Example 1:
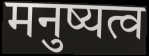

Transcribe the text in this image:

मनुष्यत्‍व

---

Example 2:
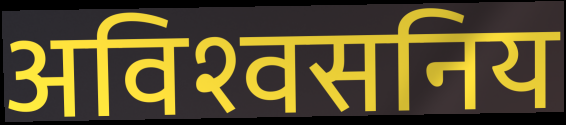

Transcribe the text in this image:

अविश्वसनिय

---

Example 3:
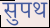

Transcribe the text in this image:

सुपथ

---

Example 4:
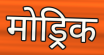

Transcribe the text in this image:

मोड्रिक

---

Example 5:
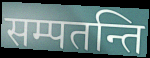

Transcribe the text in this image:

सम्पतन्ति